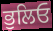
ਭੁਲਿਓ